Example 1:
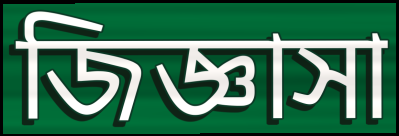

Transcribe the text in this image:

জিজ্ঞাসা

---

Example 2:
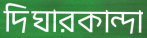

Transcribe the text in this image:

দিঘারকান্দা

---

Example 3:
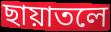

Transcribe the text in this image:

ছায়াতলে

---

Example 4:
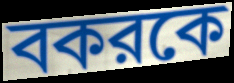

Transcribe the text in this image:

বকরকে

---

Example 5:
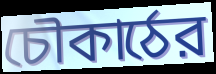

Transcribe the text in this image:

চৌকাঠের